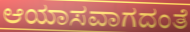
ಆಯಾಸವಾಗದಂತೆ